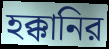
হক্কানির